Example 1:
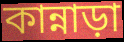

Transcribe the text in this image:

কান্নাড়া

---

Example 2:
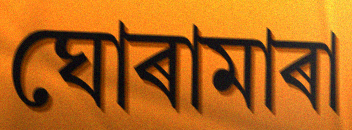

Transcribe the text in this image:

ঘোৰামাৰা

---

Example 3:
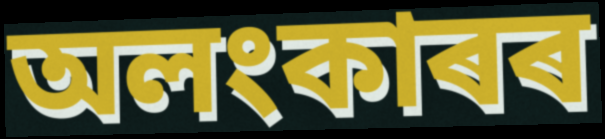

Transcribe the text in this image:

অলংকাৰৰ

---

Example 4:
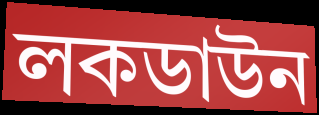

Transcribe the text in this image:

লকডাউন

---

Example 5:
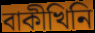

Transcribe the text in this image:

বাকীখিনি